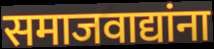
समाजवाद्यांना